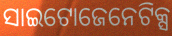
ସାଇଟୋଜେନେଟିକ୍ସ